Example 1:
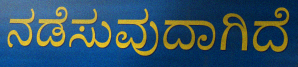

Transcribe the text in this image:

ನಡೆಸುವುದಾಗಿದೆ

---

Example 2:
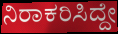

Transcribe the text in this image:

ನಿರಾಕರಿಸಿದ್ದೇ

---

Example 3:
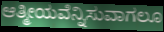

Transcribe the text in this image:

ಆತ್ಮೀಯವೆನ್ನಿಸುವಾಗಲೂ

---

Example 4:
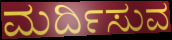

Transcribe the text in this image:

ಮರ್ದಿಸುವ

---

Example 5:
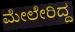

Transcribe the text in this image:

ಮೇಲೇರಿದ್ದ